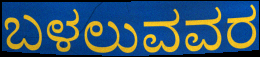
ಬಳಲುವವರ